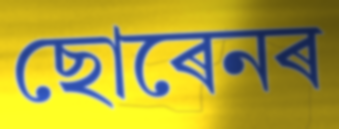
ছোৰেনৰ